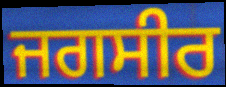
ਜਗਸੀਰ